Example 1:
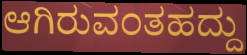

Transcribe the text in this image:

ಆಗಿರುವಂತಹದ್ದು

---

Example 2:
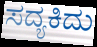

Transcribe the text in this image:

ಸದ್ಯಕಿದು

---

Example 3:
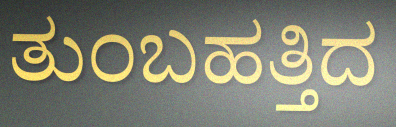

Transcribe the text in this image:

ತುಂಬಹತ್ತಿದ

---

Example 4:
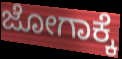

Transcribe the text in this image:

ಜೋಗಾಕ್ಕೆ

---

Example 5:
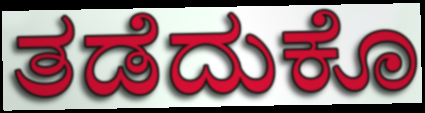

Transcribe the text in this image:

ತಡೆದುಕೊ